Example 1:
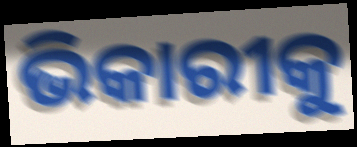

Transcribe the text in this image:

ଭିକାରୀକୁ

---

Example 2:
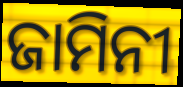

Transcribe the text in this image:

ଜାମିନୀ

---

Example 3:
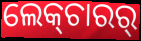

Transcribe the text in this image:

ଲେକ୍‍ଚାରର୍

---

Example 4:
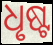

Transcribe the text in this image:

ଧୃଷ୍ଟ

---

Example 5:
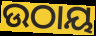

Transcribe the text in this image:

ଉଠାୟ